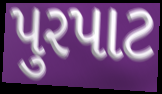
પુરપાટ